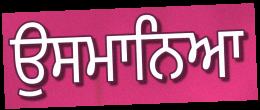
ਉਸਮਾਨਿਆ